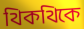
থিকথিকে